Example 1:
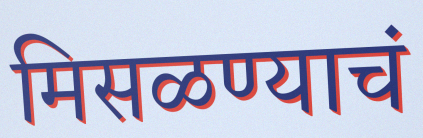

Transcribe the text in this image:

मिसळण्याचं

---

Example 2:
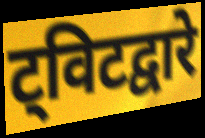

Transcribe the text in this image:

ट्विटद्वारे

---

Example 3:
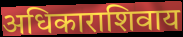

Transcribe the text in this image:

अधिकाराशिवाय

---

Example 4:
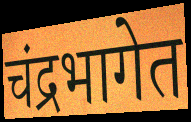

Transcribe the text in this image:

चंद्रभागेत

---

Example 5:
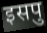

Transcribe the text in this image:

इसपु